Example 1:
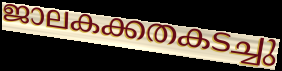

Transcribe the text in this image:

ജാലകക്കതകടച്ചു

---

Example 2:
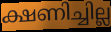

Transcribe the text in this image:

ക്ഷണിച്ചില്ല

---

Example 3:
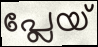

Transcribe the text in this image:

പ്ലേയ്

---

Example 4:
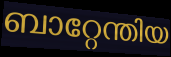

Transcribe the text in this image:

ബാറ്റേന്തിയ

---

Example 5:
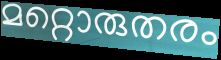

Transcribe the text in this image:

മറ്റൊരുതരം